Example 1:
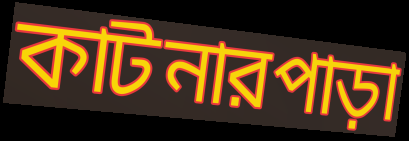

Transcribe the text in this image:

কাটনারপাড়া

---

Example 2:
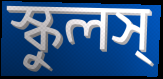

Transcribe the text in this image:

স্কুলস্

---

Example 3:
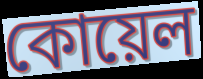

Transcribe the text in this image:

কোয়েল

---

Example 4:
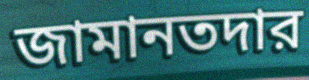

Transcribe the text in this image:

জামানতদার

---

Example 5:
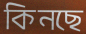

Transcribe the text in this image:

কিনছে